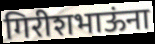
गिरीशभाऊंना